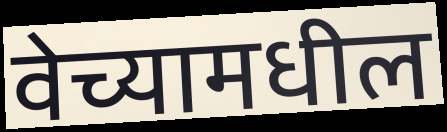
वेच्यामधील